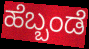
ಹೆಬ್ಬಂಡೆ